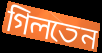
গিলতেন